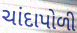
ચાંદાપોળી